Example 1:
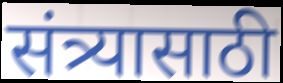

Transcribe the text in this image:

संत्र्यासाठी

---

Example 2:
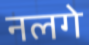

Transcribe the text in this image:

नलगे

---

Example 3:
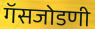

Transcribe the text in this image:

गॅसजोडणी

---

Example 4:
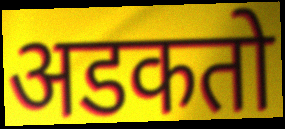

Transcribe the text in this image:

अडकतो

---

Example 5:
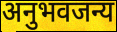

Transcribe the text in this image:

अनुभवजन्य